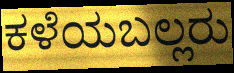
ಕಳೆಯಬಲ್ಲರು